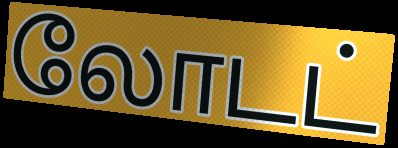
லோடட்